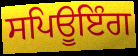
ਸਪਿਊਇੰਗ